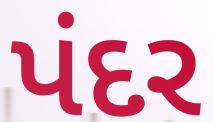
પંદર